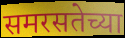
समरसतेच्या